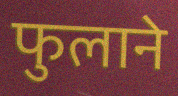
फुलाने